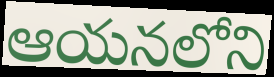
ఆయనలోని